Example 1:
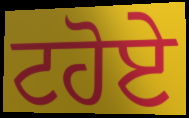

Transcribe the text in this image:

ਟਹੋਏ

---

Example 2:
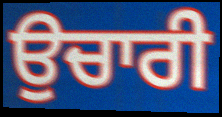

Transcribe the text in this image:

ਉਚਾਰੀ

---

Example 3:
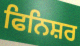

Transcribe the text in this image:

ਫਿਨਿਸ਼ਰ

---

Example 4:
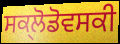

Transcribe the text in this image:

ਸਕ੍ਲੋਡੋਵਸਕੀ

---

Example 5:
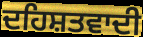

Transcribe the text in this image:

ਦਹਿਸ਼ਤਵਾਦੀ